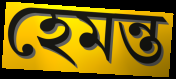
হেমন্ত